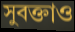
সুবক্তাও